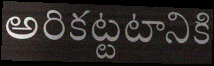
అరికట్టటానికి